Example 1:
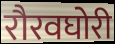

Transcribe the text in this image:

रौरवघोरी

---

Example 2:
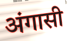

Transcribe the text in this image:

अंगासी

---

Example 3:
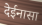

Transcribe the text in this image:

देईनासा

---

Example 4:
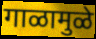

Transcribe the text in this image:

गाळामुळे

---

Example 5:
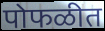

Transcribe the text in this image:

पोफळीत